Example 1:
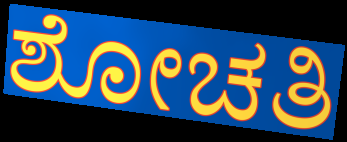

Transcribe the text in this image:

ಶೋಚತಿ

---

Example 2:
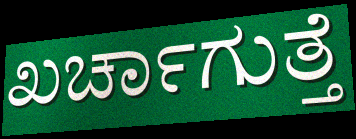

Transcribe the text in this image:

ಖರ್ಚಾಗುತ್ತೆ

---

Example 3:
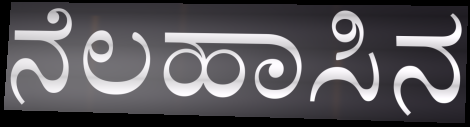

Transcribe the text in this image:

ನೆಲಹಾಸಿನ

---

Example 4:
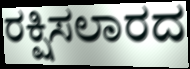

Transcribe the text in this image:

ರಕ್ಷಿಸಲಾರದ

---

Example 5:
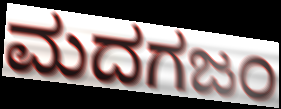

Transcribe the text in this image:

ಮದಗಜಂ